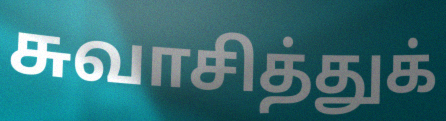
சுவாசித்துக்